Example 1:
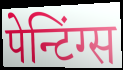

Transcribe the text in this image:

पेन्टिंग्स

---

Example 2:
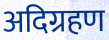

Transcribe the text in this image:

अदिग्रहण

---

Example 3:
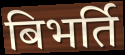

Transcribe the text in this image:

बिभर्ति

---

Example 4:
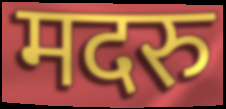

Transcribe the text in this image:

मदरु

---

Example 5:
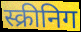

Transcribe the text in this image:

स्क्रीनिग